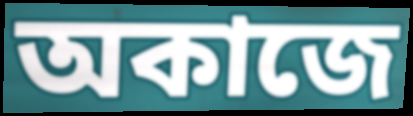
অকাজে